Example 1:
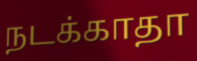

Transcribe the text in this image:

நடக்காதா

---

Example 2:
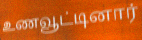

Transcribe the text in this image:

உணவூட்டினார்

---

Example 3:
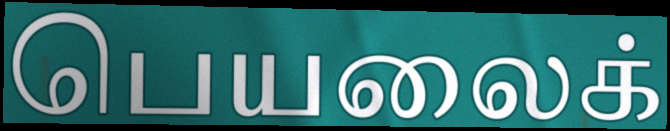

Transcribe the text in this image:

பெயலைக்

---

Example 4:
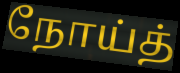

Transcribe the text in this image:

நோய்த்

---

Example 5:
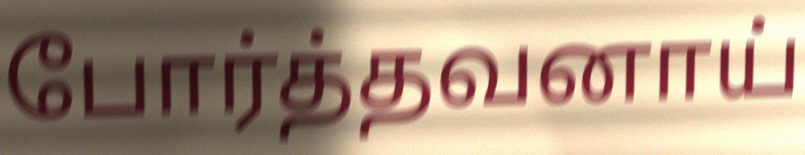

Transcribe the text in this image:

போர்த்தவனாய்